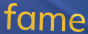
fame